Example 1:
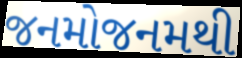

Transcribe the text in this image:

જનમોજનમથી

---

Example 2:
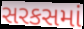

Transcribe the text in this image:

સરકસમાં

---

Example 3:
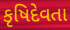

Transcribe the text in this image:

કૃષિદેવતા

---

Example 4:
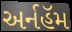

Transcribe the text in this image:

અર્નહૅમ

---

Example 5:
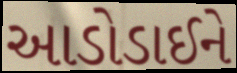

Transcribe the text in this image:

આડોડાઈને